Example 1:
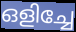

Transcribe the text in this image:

ഒളിച്ചേ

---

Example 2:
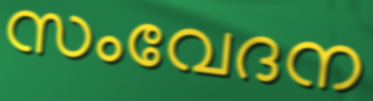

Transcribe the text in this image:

സംവേദന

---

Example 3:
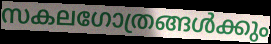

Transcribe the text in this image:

സകലഗോത്രങ്ങൾക്കും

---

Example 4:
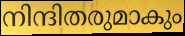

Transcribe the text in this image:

നിന്ദിതരുമാകും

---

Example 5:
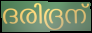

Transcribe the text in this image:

ദരിദ്രന്